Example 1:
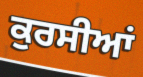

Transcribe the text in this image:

ਕੁਰਸੀਆਂ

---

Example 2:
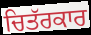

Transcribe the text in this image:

ਚਿਤੱਰਕਾਰ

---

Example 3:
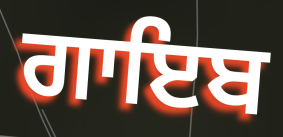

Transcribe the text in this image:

ਗਾਇਬ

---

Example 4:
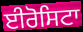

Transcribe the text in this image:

ਈਰੋਸਿਟਾ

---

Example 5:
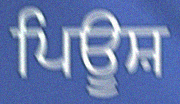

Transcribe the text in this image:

ਪਿਊਸ਼